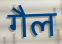
गैल